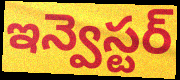
ఇన్వెస్టర్